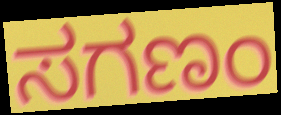
ಸಗಣಂ